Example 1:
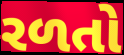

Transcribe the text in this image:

રળતો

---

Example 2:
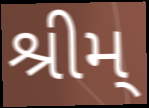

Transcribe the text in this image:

શ્રીમ્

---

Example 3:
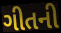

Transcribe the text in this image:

ગીતની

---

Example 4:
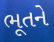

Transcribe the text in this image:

ભૂતને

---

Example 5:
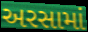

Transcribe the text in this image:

અરસામાં